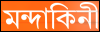
মন্দাকিনী